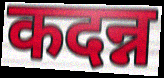
कदन्न